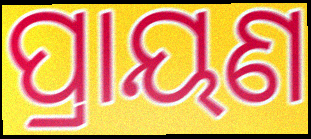
ପ୍ରାୟଣ